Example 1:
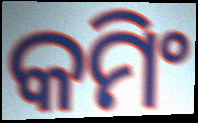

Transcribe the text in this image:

କମିଂ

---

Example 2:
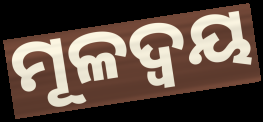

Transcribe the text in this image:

ମୂଳଦ୍ଵୟ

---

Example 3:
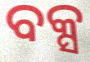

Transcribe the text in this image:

ବକ୍ସ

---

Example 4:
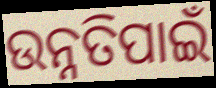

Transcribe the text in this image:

ଉନ୍ନତିପାଇଁ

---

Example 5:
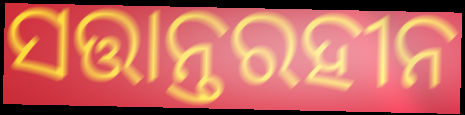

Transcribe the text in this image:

ସତ୍ତାନ୍ତରହୀନ